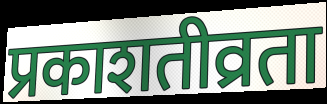
प्रकाशतीव्रता